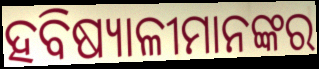
ହବିଷ୍ୟାଳୀମାନଙ୍କର